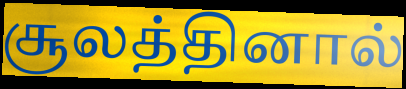
சூலத்தினால்